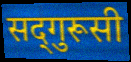
सद्‍गुरूसी